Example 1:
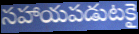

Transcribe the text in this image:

సహాయపడుటకై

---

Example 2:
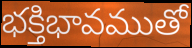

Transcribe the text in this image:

భక్తిభావముతో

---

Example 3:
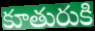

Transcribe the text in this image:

కూతురుకి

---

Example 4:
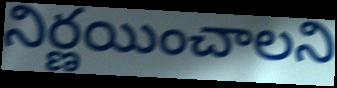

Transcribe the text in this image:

నిర్ణయించాలని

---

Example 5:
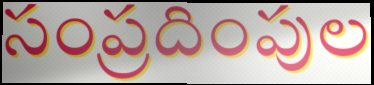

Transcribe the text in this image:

సంప్రదింపుల